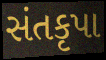
સંતકૃપા